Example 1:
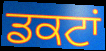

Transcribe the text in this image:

ਡਕਟਾਂ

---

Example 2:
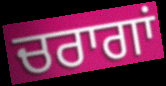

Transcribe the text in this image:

ਚਰਾਗਾਂ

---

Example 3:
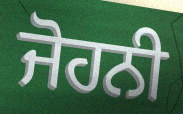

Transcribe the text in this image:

ਜੋਹਨੀ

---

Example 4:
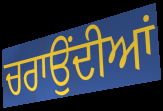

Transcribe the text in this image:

ਚਰਾਉਂਦੀਆਂ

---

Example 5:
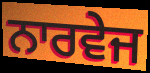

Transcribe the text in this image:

ਨਾਰਵੇਜ